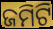
ଜମିଟି